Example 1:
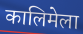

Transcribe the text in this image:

कालिमेला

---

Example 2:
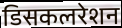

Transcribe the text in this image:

डिसकलरेशन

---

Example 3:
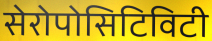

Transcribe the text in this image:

सेरोपोसिटिविटी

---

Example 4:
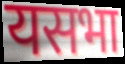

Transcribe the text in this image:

यसभा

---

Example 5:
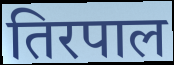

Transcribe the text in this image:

तिरपाल